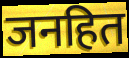
जनहित